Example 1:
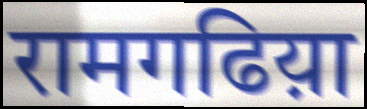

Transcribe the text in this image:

रामगढिय़ा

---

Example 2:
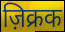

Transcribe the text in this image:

ज़िक्रक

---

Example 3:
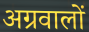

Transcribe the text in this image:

अग्रवालों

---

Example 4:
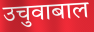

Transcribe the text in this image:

उचुवाबाल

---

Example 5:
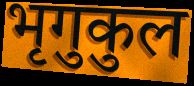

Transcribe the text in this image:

भृगुकुल